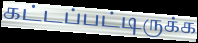
கட்டப்பட்டிருக்க